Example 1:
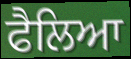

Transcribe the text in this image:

ਫੈਲਿਆ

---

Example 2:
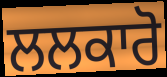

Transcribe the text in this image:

ਲਲਕਾਰੋ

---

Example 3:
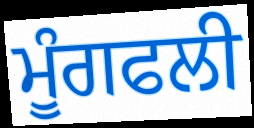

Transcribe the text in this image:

ਮੂੰਗਫਲੀ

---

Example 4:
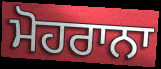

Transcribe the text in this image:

ਮੋਹਰਾਨਾ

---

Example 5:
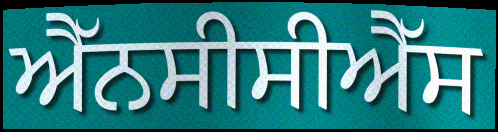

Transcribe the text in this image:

ਐੱਨਸੀਸੀਐੱਸ